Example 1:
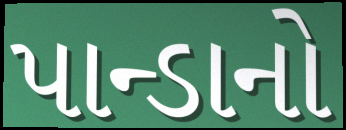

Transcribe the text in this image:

પાન્ડાનો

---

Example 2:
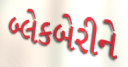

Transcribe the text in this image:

બ્લેકબેરીને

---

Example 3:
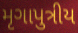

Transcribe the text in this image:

મૃગાપુત્રીય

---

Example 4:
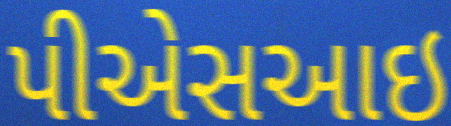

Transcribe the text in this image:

પીએસઆઇ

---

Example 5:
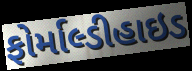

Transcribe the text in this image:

ફોર્માલ્ડીહાઇડ